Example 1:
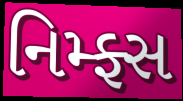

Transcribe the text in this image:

નિમ્ફ્સ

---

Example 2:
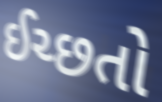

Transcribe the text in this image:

ઈચ્છતો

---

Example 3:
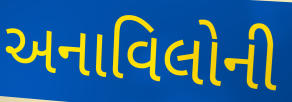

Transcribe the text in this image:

અનાવિલોની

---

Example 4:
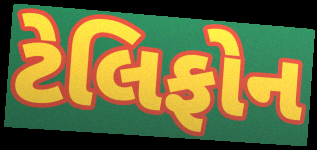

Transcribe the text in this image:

ટેલિફોન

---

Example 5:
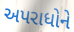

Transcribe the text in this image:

અપરાધોને